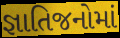
જ્ઞાતિજનોમાં